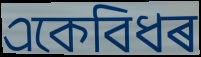
একেবিধৰ